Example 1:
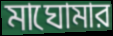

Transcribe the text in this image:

মাঘোমার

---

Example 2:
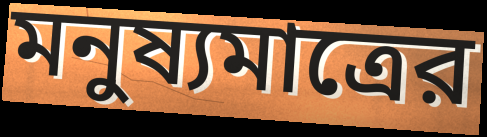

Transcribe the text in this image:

মনুষ্যমাত্রের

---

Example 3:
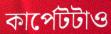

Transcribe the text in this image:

কার্পেটটাও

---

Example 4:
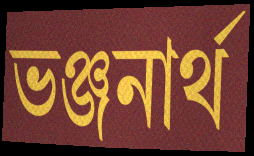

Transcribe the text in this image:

ভঞ্জনার্থ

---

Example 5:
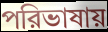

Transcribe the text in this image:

পরিভাষায়